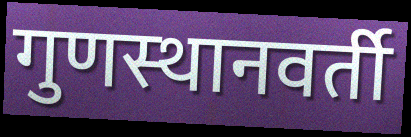
गुणस्थानवर्ती